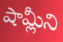
షామ్లీని